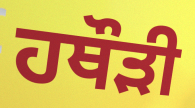
ਹਥੌੜੀ